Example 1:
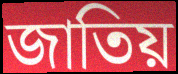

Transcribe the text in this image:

জাতিয়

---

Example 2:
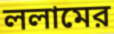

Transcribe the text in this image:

ললামের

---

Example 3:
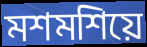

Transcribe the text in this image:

মশমশিয়ে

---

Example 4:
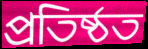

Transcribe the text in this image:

প্রতিষ্ঠত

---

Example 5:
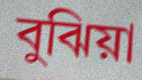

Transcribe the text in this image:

বুঝিয়া